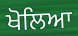
ਖੋਲਿਆ